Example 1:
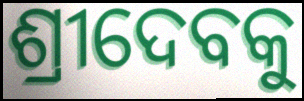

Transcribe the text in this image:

ଶ୍ରୀଦେବକୁ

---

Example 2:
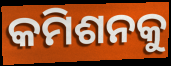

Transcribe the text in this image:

କମିଶନକୁ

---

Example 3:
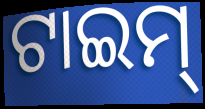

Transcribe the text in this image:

ଟାଇମ୍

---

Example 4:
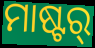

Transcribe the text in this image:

ମାଷ୍ଟର୍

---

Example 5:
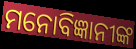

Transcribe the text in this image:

ମନୋବିଜ୍ଞାନୀଙ୍କ